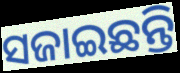
ସଜାଇଛନ୍ତି